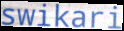
swikari